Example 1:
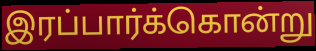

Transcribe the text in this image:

இரப்பார்க்கொன்று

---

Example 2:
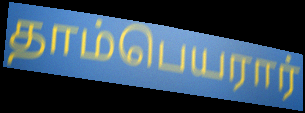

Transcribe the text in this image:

தாம்பெயரார்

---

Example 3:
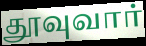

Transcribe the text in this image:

தூவுவார்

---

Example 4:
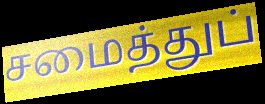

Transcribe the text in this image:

சமைத்துப்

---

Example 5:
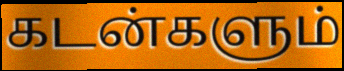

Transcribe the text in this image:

கடன்களும்